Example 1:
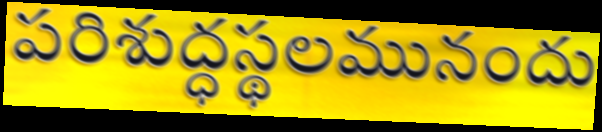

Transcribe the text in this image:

పరిశుద్ధస్థలమునందు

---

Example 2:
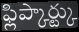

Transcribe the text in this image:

ఫ్లిప్కార్ట్కు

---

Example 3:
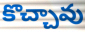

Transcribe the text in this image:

కొచ్చావు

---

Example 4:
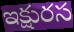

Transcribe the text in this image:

ఇక్షురస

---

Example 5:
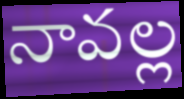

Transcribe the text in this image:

నావల్ల